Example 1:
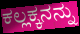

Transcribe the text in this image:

ಕಲ್ಲಕ್ಕನನ್ನು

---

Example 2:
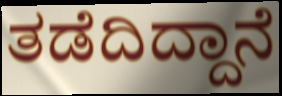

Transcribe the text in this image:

ತಡೆದಿದ್ದಾನೆ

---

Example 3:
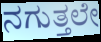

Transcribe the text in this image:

ನಗುತ್ತಲೇ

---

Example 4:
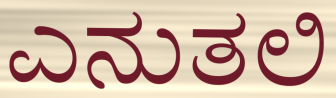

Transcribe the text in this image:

ಎನುತಲಿ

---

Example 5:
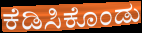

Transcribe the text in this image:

ಕೆಡಿಸಿಕೊಂಡು